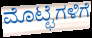
ಮೊಟ್ಟೆಗಳಿಗೆ